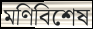
মণিবিশেষ